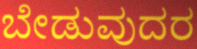
ಬೇಡುವುದರ